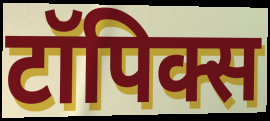
टॉपिक्स